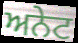
ਅਨੇਟ